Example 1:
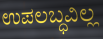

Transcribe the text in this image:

ಉಪಲಬ್ಧವಿಲ್ಲ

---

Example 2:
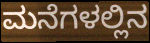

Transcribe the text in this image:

ಮನೆಗಳಲ್ಲಿನ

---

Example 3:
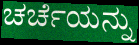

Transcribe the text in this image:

ಚರ್ಚೆಯನ್ನು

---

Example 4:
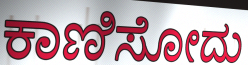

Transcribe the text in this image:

ಕಾಣಿಸೋದು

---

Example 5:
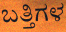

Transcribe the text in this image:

ಬತ್ತಿಗಳ